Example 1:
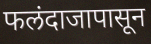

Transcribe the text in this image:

फलंदाजापासून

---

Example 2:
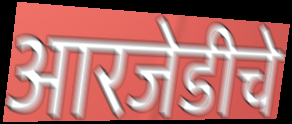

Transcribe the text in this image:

आरजेडीचे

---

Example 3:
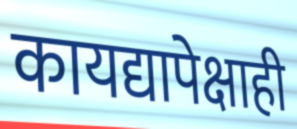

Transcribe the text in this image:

कायद्यापेक्षाही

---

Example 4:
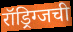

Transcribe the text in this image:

रॉड्रिग्जची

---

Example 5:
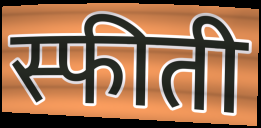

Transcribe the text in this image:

स्फीती